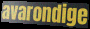
avarondige